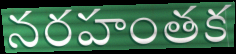
నరహంతక